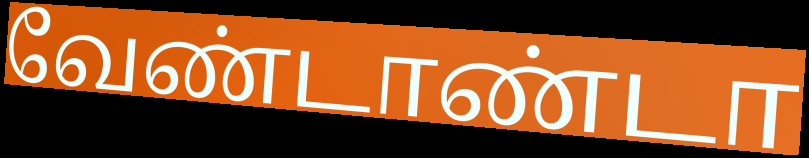
வேண்டாண்டா